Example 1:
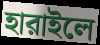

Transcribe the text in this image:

হারাইলে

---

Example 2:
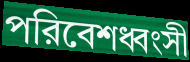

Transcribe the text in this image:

পরিবেশধ্বংসী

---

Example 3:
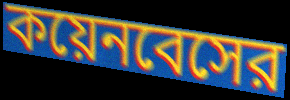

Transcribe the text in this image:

কয়েনবেসের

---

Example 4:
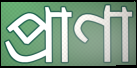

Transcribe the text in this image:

প্রাণা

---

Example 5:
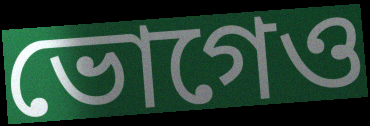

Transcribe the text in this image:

ভোগেও